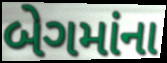
બેગમાંના